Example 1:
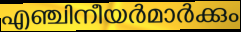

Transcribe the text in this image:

എഞ്ചിനീയർമാർക്കും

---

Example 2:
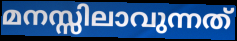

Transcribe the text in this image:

മനസ്സിലാവുന്നത്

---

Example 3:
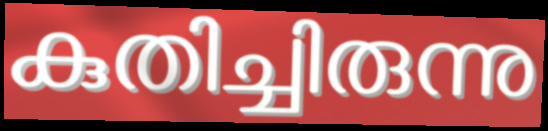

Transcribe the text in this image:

കുതിച്ചിരുന്നു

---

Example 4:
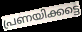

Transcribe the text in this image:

പ്രണയിക്കട്ടെ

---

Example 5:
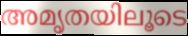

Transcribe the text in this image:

അമൃതയിലൂടെ